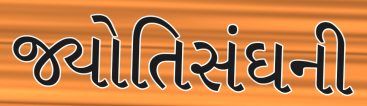
જ્યોતિસંઘની